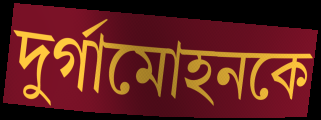
দুর্গামোহনকে